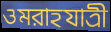
ওমরাহযাত্রী